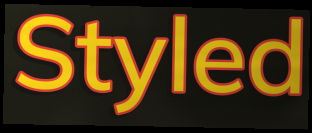
Styled